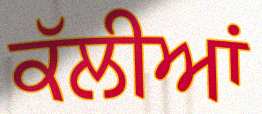
ਕੱਲੀਆਂ